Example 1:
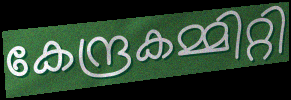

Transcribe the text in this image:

കേന്ദ്രകമ്മിറ്റി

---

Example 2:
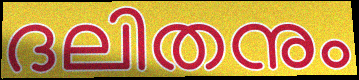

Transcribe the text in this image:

ദലിതനും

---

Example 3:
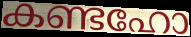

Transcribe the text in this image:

കണ്ടഹോ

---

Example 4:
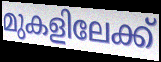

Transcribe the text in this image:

മുകളിലേക്ക്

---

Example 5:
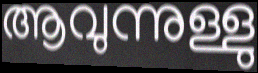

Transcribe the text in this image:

ആവുന്നുള്ളു